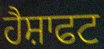
ਹੈਸ਼ਾਫਟ